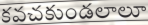
కవచకుండలాలూ